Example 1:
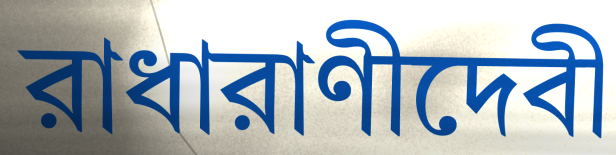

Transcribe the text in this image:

রাধারাণীদেবী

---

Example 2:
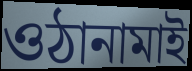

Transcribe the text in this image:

ওঠানামাই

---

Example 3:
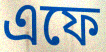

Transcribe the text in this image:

এফে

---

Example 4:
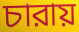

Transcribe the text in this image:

চারায়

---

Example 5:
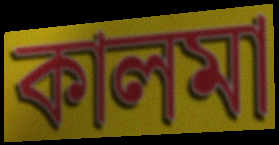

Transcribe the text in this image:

কালমা